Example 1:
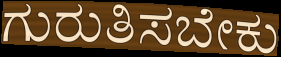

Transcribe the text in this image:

ಗುರುತಿಸಬೇಕು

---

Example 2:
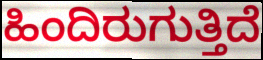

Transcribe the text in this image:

ಹಿಂದಿರುಗುತ್ತಿದೆ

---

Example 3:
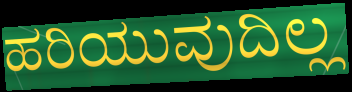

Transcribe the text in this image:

ಹರಿಯುವುದಿಲ್ಲ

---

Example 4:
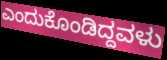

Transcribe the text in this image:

ಎಂದುಕೊಂಡಿದ್ದವಳು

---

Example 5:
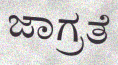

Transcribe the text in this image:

ಜಾಗ್ರತೆ